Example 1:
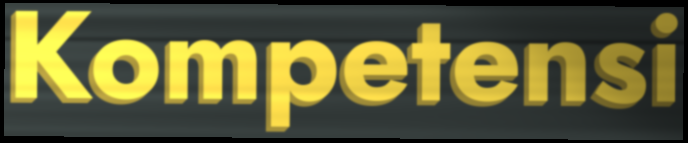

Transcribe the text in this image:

Kompetensi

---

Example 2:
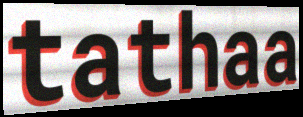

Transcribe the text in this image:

tathaa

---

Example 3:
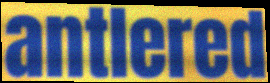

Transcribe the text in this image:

antlered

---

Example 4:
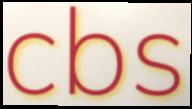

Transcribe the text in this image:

cbs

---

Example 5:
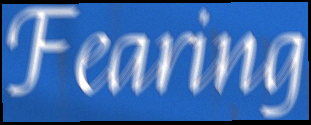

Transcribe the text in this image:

Fearing